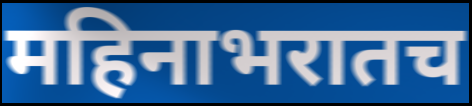
महिनाभरातच